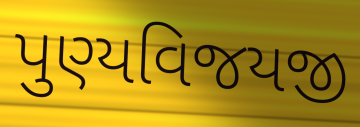
પુણ્યવિજયજી